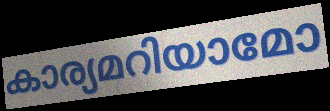
കാര്യമറിയാമോ